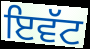
ਇਵੱਟ